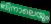
ബിനാലെയും